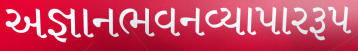
અજ્ઞાનભવનવ્યાપારરૂપ